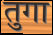
तुगा